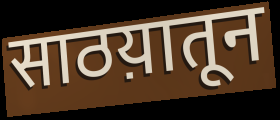
साठय़ातून